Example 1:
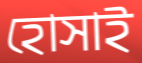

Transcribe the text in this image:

হোসাই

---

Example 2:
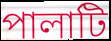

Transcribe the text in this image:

পালাটি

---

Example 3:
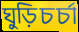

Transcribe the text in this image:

ঘুড়িচর্চা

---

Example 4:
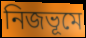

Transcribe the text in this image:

নিজভূমে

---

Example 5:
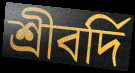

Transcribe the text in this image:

শ্রীবর্দি